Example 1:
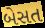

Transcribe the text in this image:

બેસત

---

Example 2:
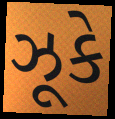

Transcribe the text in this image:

ઝૂકે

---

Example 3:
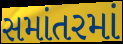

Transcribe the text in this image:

સમાંતરમાં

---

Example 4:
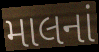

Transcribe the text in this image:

માલનાં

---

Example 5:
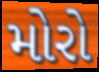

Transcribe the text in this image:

મોરો